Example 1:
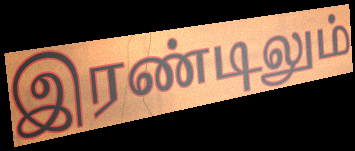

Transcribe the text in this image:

இரண்டிலும்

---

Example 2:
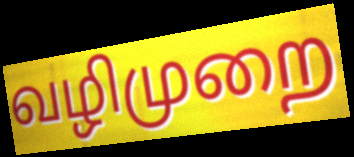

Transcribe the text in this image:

வழிமுறை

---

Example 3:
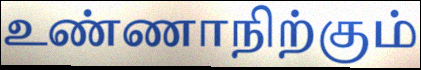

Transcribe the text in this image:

உண்ணாநிற்கும்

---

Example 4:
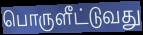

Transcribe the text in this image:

பொருளீட்டுவது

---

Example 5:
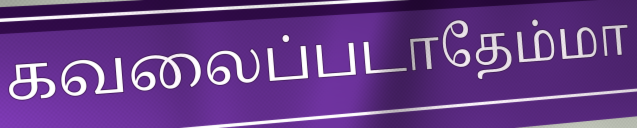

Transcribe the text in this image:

கவலைப்படாதேம்மா